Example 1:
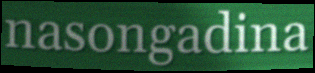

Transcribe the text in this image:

nasongadina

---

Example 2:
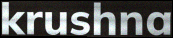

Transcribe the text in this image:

krushna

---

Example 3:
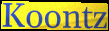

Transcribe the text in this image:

Koontz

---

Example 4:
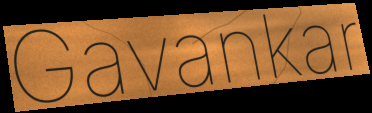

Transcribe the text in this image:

Gavankar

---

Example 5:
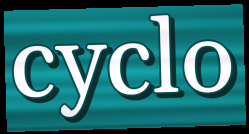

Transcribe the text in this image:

cyclo